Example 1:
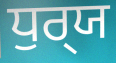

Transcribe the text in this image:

ਧੁਰ੍‍ਯ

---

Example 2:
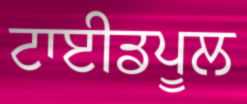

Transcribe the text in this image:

ਟਾਈਡਪੂਲ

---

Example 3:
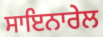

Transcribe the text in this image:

ਸਾਇਨਾਰੇਲ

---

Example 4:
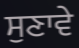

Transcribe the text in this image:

ਸੁਣਾਵੇ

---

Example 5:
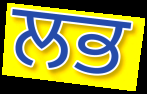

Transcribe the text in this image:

ਲਭ